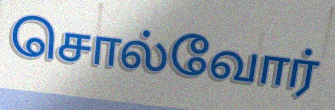
சொல்வோர்